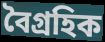
বৈগ্রহিক